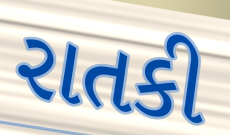
રાતકી